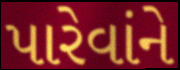
પારેવાંને